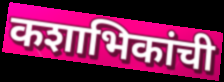
कशाभिकांची